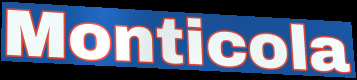
Monticola